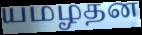
யமழதன